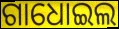
ଗାଧୋଇଲ